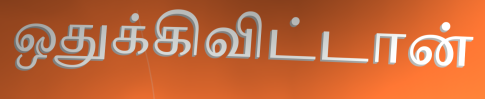
ஒதுக்கிவிட்டான்